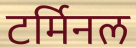
टर्मिनल